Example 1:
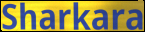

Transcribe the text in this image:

Sharkara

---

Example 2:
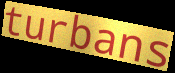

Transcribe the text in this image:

turbans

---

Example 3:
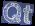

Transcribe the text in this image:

Qt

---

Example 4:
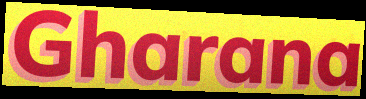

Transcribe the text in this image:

Gharana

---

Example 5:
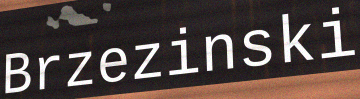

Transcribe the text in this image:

Brzezinski